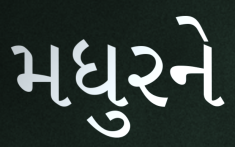
મધુરને